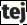
tej